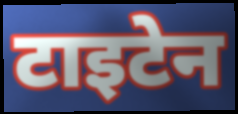
टाइटेन